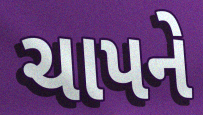
ચાપને